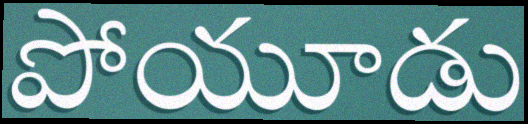
పోయూడు